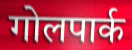
गोलपार्क